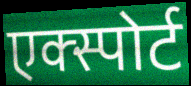
एक्‍स्पोर्ट